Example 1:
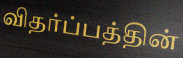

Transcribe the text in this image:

விதர்ப்பத்தின்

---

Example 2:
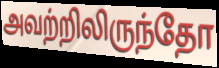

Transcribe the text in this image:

அவற்றிலிருந்தோ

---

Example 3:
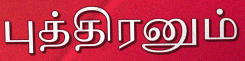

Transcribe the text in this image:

புத்திரனும்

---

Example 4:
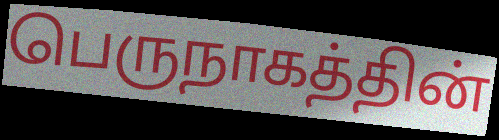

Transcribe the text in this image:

பெருநாகத்தின்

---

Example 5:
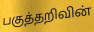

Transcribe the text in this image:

பகுத்தறிவின்